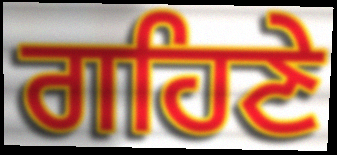
ਗਹਿਣੇ